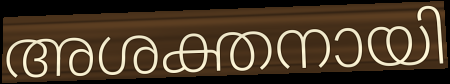
അശക്തനായി